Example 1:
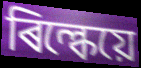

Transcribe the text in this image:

ৰিল্কেয়ে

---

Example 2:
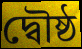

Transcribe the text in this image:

দ্বৌষ্ঠ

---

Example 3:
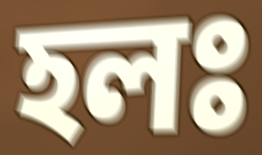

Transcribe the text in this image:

হলঃ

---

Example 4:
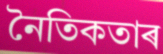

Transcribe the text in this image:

নৈতিকতাৰ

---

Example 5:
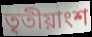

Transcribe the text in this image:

তৃতীয়াংশ